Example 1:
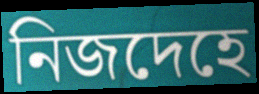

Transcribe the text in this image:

নিজদেহে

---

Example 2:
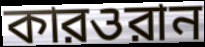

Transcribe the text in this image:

কারওরান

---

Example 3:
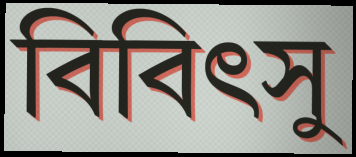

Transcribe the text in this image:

বিবিৎসু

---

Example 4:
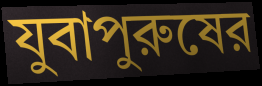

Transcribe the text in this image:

যুবাপুরুষের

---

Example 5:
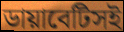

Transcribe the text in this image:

ডায়াবেটিসই